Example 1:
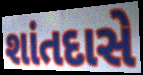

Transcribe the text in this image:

શાંતદાસે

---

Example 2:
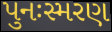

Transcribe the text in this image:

પુનઃસ્મરણ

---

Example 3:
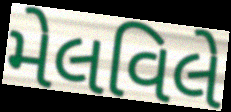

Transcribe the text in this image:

મેલવિલે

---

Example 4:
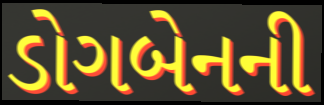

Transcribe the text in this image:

ડોગબેનની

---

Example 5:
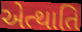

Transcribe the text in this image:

એત્થાતિ